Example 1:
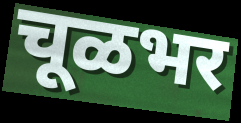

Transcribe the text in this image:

चूळभर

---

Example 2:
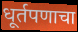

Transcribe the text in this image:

धूर्तपणाचा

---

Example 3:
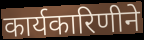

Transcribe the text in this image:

कार्यकारिणीने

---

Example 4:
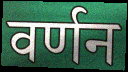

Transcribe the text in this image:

वर्णन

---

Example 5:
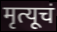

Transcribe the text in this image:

मृत्यूचं